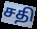
சதி